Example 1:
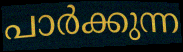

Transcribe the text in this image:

പാർക്കുന്ന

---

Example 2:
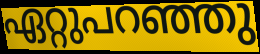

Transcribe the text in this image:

ഏറ്റുപറഞ്ഞു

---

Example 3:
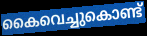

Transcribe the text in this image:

കൈവെച്ചുകൊണ്ട്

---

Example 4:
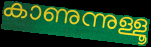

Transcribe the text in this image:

കാണുന്നുള്ളൂ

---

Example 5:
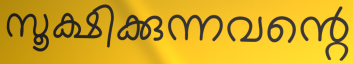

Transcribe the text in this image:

സൂക്ഷിക്കുന്നവന്റെ